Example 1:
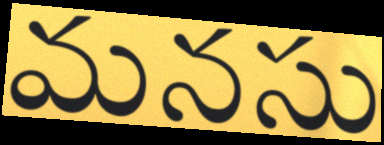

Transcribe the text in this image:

మనసు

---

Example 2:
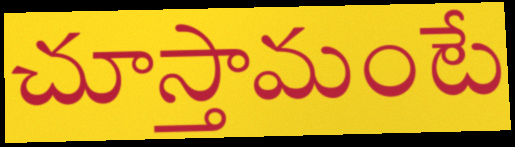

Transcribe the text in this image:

చూస్తామంటే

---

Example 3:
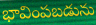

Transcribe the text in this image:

భావింపబడును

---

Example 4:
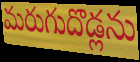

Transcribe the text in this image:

మరుగుదొడ్లను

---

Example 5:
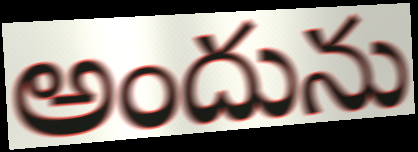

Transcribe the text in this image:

అందును